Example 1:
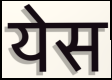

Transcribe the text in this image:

येस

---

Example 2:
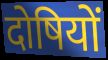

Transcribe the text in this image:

दोषियों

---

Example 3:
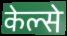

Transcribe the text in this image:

केल्से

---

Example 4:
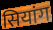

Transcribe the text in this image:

सियांग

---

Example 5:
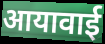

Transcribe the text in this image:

आयावाई